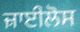
ਜ਼ਾਈਲੋਸ